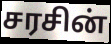
சரசின்